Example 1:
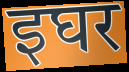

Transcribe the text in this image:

इघर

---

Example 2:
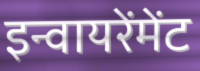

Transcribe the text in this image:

इन्वायरेंमेंट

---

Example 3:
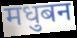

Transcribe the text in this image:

मधुबन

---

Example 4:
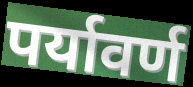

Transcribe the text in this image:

पर्यावर्ण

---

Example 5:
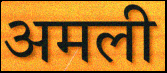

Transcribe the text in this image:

अमली